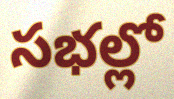
సభల్లో